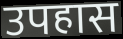
उपहास